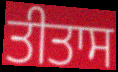
ਤੀਤਾਸ